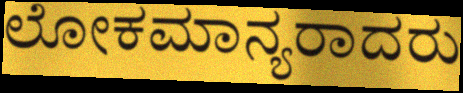
ಲೋಕಮಾನ್ಯರಾದರು